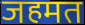
जहमत